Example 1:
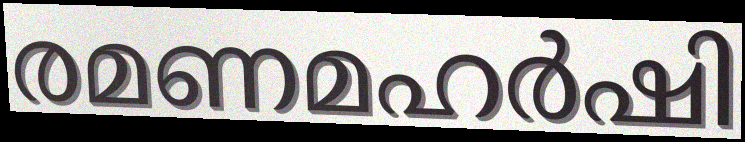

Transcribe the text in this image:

രമണമഹർഷി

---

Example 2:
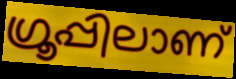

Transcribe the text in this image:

ഗ്രൂപ്പിലാണ്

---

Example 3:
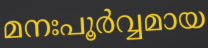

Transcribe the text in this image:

മനഃപൂർവ്വമായ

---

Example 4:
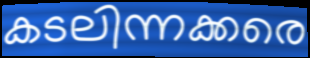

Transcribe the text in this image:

കടലിന്നക്കരെ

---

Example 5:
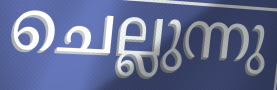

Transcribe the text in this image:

ചെല്ലുന്നു